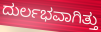
ದುರ್ಲಭವಾಗಿತ್ತು